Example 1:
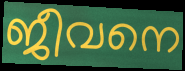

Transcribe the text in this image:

ജീവനെ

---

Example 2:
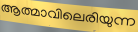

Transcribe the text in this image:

ആത്മാവിലെരിയുന്ന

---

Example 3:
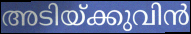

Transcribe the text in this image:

അടിയ്ക്കുവിൻ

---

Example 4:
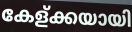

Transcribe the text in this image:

കേള്ക്കയായി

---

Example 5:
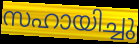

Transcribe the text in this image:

സഹായിച്ചു